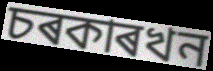
চৰকাৰখন